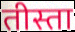
तीस्ता